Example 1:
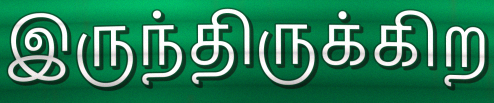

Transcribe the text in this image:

இருந்திருக்கிற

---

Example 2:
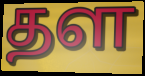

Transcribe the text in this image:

தள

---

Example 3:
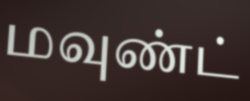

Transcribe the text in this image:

மவுண்ட்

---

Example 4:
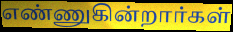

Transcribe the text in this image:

எண்ணுகின்றார்கள்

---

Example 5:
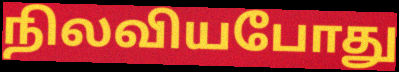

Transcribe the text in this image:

நிலவியபோது